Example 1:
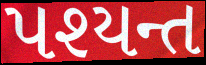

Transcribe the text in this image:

પશ્યન્ત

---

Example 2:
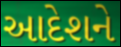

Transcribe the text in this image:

આદેશને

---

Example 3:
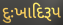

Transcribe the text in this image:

દુઃખાદિરૂપ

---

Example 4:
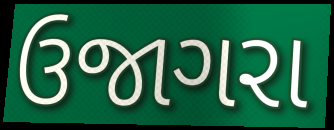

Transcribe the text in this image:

ઉજાગરા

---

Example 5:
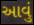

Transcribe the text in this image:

આવું